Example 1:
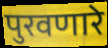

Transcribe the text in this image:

पुरवणारे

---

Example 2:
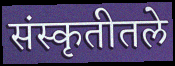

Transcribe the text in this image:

संस्कृतीतले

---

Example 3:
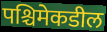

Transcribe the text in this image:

पश्चिमेकडील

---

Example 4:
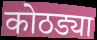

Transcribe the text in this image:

कोठड्या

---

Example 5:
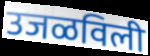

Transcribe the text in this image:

उजळविली